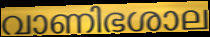
വാണിഭശാല